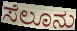
ಸೆಲೂನು